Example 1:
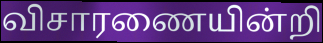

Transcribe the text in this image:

விசாரணையின்றி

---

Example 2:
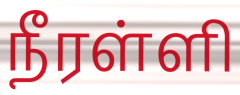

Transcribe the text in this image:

நீரள்ளி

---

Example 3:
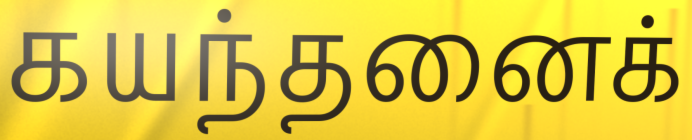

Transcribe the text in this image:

கயந்தனைக்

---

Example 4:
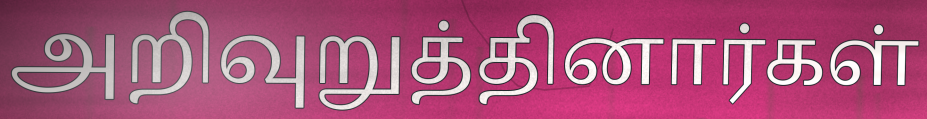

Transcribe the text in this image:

அறிவுறுத்தினார்கள்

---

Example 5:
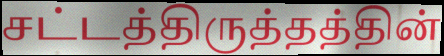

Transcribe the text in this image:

சட்டத்திருத்தத்தின்